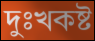
দুঃখকষ্ট